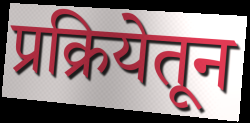
प्रक्रियेतून